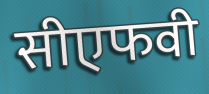
सीएफवी